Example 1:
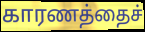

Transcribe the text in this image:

காரணத்தைச்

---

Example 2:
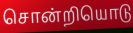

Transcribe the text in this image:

சொன்றியொடு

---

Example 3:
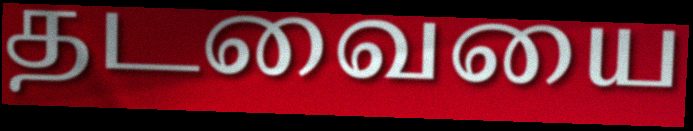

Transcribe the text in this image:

தடவையை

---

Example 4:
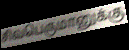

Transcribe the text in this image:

சிவபெருமானுக்கு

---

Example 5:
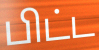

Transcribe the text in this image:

பிட்ட